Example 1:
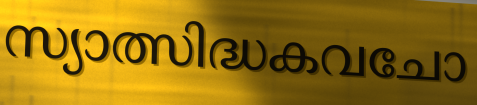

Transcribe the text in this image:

സ്യാത്സിദ്ധകവചോ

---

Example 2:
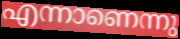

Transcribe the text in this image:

എന്നാണെന്നു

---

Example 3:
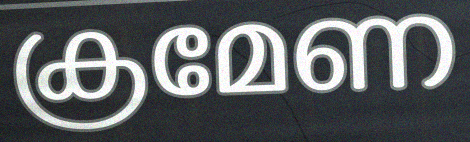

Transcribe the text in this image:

ക്രമേണ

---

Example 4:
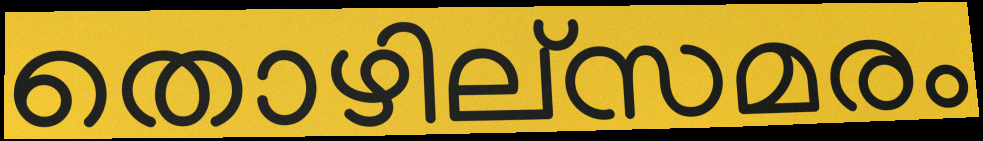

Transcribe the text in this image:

തൊഴില്സമരം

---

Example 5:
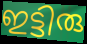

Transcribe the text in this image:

ഇട്ടിരു